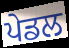
ਪੇਡਲ